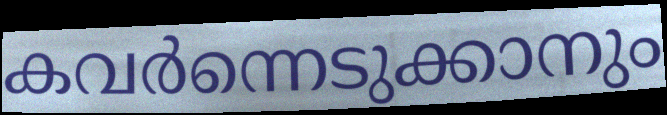
കവർന്നെടുക്കാനും